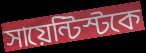
সায়েন্টিস্টকে